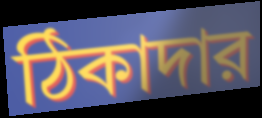
ঠিকাদার